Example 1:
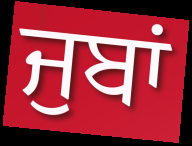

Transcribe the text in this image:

ਜੁਬਾਂ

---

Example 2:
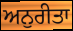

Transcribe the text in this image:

ਅਨੁਰੀਤਾ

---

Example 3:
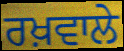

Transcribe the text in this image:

ਰਖ਼ਵਾਲੇ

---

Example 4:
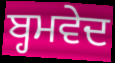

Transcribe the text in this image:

ਬ੍ਹਮਵੇਦ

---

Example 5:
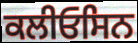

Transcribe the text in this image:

ਕਲੀਓਸਿਨ